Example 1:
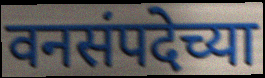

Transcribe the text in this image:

वनसंपदेच्या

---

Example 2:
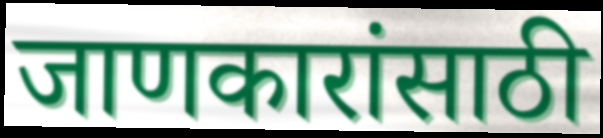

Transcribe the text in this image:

जाणकारांसाठी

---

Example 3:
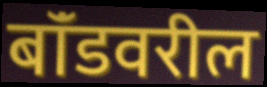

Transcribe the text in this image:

बॉंडवरील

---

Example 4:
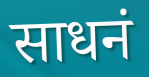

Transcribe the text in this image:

साधनं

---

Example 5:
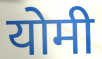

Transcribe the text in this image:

योमी